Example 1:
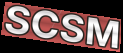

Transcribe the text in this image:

SCSM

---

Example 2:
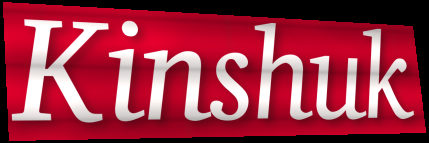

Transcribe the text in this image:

Kinshuk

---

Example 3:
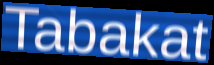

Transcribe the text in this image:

Tabakat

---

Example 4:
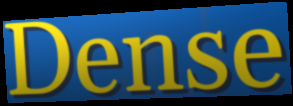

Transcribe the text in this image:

Dense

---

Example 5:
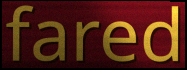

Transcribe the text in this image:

fared